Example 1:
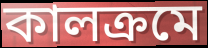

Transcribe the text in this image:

কালক্রমে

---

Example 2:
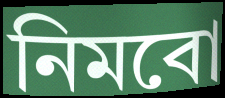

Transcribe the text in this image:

নিমবো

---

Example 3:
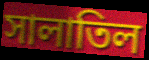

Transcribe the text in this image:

সালাতিল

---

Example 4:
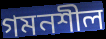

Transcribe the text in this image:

গমনশীল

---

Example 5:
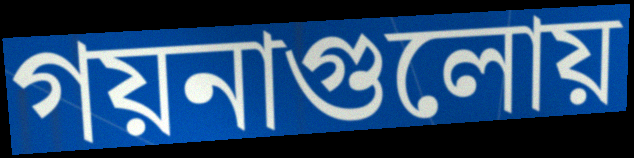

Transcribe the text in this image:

গয়নাগুলোয়